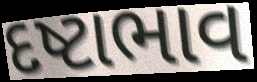
દષ્ટાભાવ